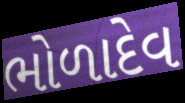
ભોળાદેવ